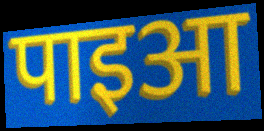
पाइआ